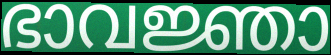
ഭാവജ്ഞാ